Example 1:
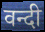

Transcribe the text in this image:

वन्दी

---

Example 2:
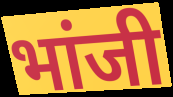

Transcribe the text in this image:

भांजी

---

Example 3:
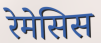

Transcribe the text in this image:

रेमेसिस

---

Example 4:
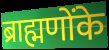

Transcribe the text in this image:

ब्राह्मणोंके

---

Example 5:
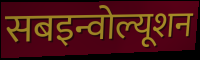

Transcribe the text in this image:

सबइन्वोल्यूशन